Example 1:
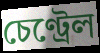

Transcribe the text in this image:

চেণ্ট্ৰেল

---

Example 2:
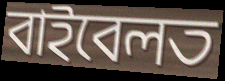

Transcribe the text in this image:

বাইবেলত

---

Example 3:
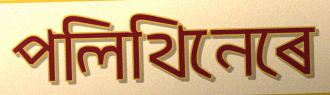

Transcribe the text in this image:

পলিথিনেৰে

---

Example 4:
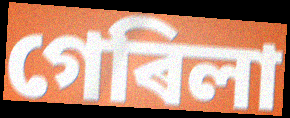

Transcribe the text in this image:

গেৰিলা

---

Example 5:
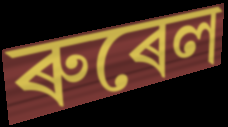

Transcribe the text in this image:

ৰুৰেল